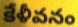
కేళీవనం